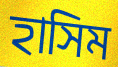
হাসিম